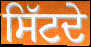
ਸਿੱਟਦੇ